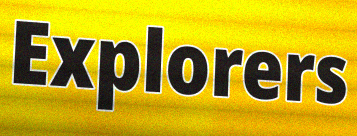
Explorers